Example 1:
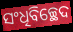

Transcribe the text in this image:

ସଂଧିବିଚ୍ଛେଦ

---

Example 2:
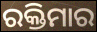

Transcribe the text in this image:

ରକ୍ତିମାର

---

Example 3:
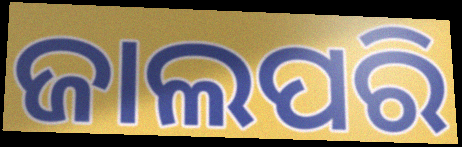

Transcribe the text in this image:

ଜାଲପରି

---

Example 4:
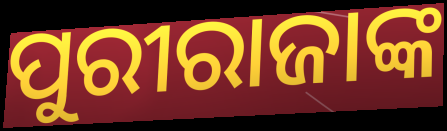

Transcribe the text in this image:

ପୁରୀରାଜାଙ୍କ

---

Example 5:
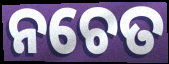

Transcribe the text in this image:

ନଚେତ